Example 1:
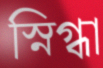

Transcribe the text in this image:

স্নিগ্ধা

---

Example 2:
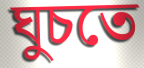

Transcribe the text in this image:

ঘুচতে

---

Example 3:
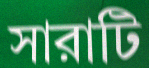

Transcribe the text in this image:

সারাটি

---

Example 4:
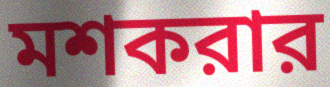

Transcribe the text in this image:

মশকরার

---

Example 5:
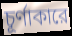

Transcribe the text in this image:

চূর্ণাকারে